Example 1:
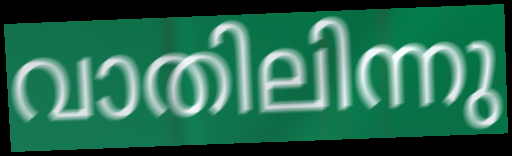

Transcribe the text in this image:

വാതിലിന്നു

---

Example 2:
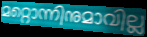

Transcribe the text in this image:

മറ്റൊന്നിനുമാവില്ല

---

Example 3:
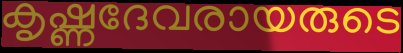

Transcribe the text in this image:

കൃഷ്ണദേവരായരുടെ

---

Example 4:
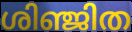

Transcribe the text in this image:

ശിഞ്ജിത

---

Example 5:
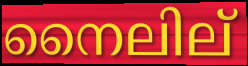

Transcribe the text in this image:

നൈലില്